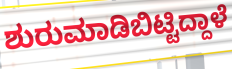
ಶುರುಮಾಡಿಬಿಟ್ಟಿದ್ದಾಳೆ